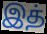
இத்